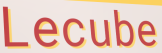
Lecube